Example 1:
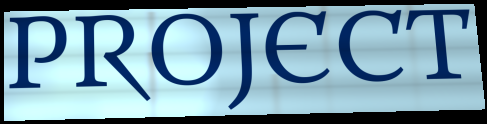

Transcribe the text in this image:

PROJECT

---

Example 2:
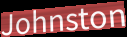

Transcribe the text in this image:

Johnston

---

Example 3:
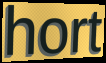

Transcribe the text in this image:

hort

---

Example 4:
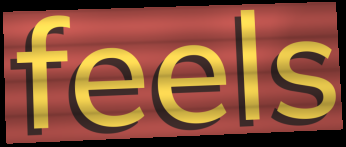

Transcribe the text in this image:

feels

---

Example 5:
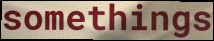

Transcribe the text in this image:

somethings